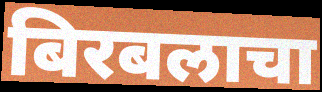
बिरबलाचा